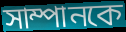
সাম্পানকে